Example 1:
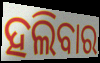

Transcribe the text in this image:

ହଲିବାର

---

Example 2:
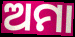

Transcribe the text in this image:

ଅମା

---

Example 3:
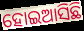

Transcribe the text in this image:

ହୋଇଆସିଛି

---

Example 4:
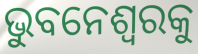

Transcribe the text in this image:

ଭୁବନେଶ୍ୱରକୁ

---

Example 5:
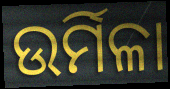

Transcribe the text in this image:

ଉର୍ମିଳା